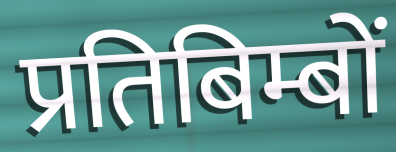
प्रतिबिम्बों